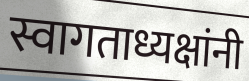
स्वागताध्यक्षांनी